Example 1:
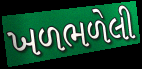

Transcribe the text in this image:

ખળભળેલી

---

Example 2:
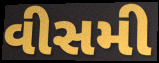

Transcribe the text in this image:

વીસમી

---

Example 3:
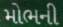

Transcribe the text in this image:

મોભની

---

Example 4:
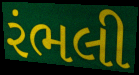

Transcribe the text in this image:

રંભલી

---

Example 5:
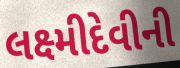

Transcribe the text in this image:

લક્ષ્મીદેવીની